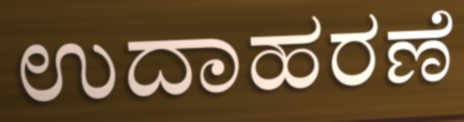
ಉದಾಹರಣೆ